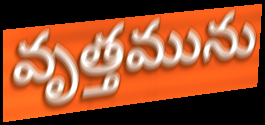
వృత్తమును